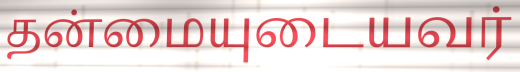
தன்மையுடையவர்